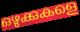
ഒഴുക്കുകളെ